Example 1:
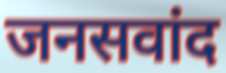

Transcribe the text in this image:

जनसवांद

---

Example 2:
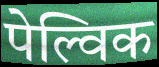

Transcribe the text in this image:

पेल्विक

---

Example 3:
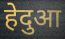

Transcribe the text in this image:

हेदुआ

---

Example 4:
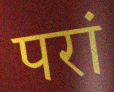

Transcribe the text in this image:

परां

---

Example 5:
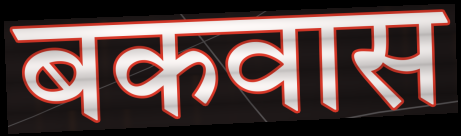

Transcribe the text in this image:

बकवास